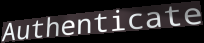
Authenticate